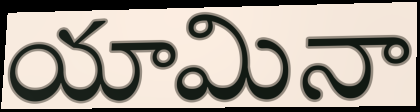
యామినా